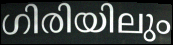
ഗിരിയിലും